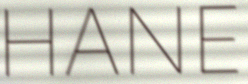
HANE